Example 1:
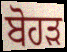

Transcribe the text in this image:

ਬੋਹੜ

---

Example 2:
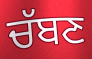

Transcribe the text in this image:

ਚੱਬਣ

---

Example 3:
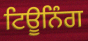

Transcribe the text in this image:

ਟਿਊਨਿੰਗ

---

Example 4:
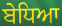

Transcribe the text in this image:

ਬੇਧਿਆ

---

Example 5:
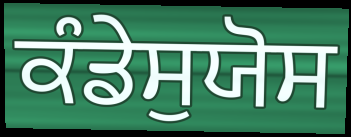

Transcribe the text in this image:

ਕੰਡੇਸੁਯੋਸ